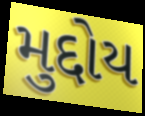
મુદ્દોય